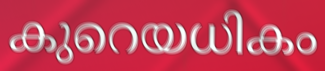
കുറെയധികം